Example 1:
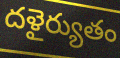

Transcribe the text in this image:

దళైర్యుతం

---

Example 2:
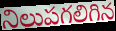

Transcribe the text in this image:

నిలుపగలిగిన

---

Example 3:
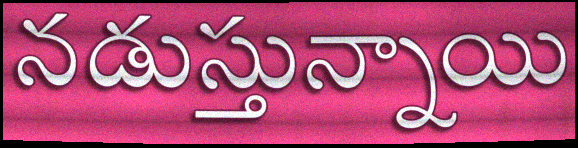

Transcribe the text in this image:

నడుస్తున్నాయి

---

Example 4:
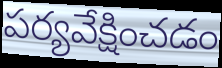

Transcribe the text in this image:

పర్యవేక్షించడం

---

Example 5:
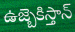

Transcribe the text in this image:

ఉజ్బెకిస్తాన్